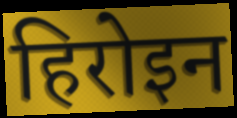
हिरोइन